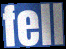
fell